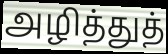
அழித்துத்